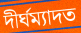
দীৰ্ঘম্যাদত